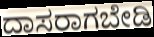
ದಾಸರಾಗಬೇಡಿ